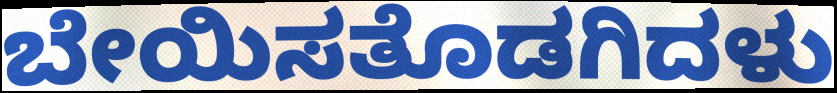
ಬೇಯಿಸತೊಡಗಿದಳು